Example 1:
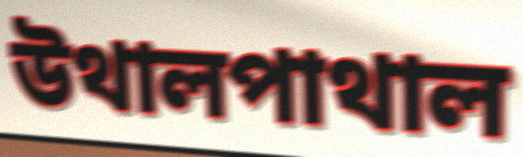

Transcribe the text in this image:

উথালপাথাল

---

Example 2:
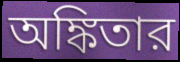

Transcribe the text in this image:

অঙ্কিতার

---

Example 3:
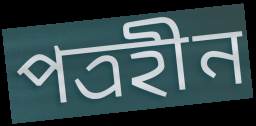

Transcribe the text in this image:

পত্রহীন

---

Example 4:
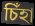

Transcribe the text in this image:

চিঁহা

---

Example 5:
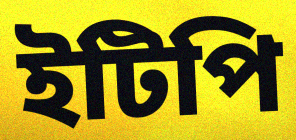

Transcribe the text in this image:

ইটিপি